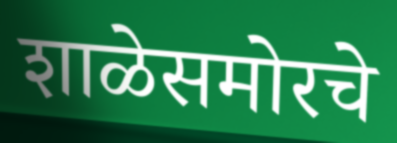
शाळेसमोरचे